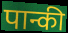
पान्की